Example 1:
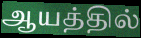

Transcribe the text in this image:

ஆயத்தில்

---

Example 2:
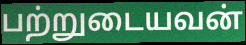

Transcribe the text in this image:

பற்றுடையவன்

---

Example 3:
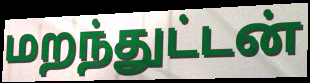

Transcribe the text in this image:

மறந்துட்டன்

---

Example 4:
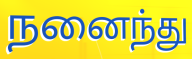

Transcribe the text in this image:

நனைந்து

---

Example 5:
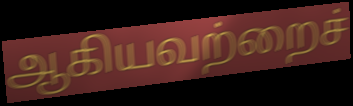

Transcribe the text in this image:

ஆகியவற்றைச்